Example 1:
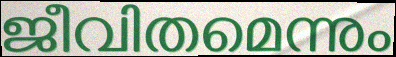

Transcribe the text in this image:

ജീവിതമെന്നും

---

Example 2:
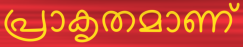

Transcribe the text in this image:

പ്രാകൃതമാണ്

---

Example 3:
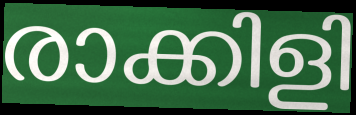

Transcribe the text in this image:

രാക്കിളി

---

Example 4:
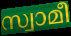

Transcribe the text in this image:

സ്വാമീ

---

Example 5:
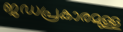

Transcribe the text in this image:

ജഡപ്രകാരമുള്ള